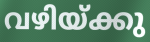
വഴിയ്ക്കു